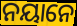
ନୟାନେ